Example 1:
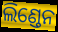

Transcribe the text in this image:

ଲିଣ୍ଡେନ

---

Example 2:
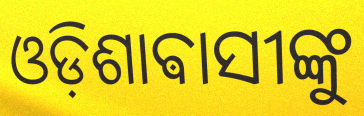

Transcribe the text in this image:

ଓଡ଼ିଶାଵାସୀଙ୍କୁ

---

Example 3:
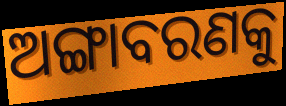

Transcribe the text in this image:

ଅଙ୍ଗାବରଣକୁ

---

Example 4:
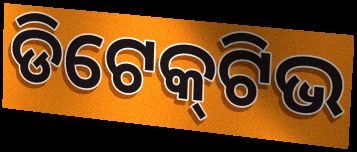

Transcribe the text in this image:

ଡିଟେକ୍‍ଟିଭ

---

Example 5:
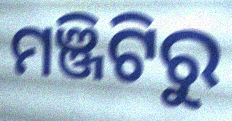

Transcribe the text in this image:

ମଞ୍ଜିଟିରୁ